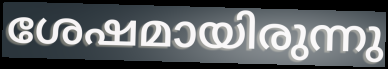
ശേഷമായിരുന്നു